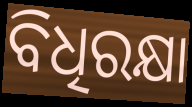
ବିଧିରକ୍ଷା